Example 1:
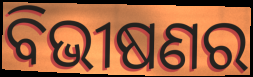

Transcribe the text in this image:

ବିଭୀଷଣର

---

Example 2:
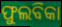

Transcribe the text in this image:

ଫୁଲବିକା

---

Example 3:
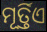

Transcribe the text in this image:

ମୂର୍ତ୍ତିଏ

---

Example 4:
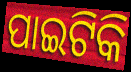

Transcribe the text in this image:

ପାଇଟିକି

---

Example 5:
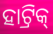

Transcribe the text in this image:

ହାଟ୍ରିକ୍